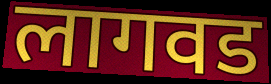
लागवड